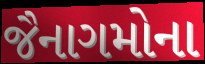
જૈનાગમોના